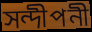
সন্দীপনী